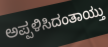
ಅಪ್ಪಳಿಸಿದಂತಾಯ್ತು